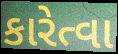
કારેત્વા